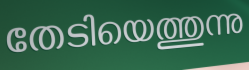
തേടിയെത്തുന്നു